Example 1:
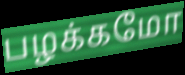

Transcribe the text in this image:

பழக்கமோ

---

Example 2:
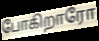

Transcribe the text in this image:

போகிறாரோ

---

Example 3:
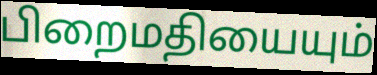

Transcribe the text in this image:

பிறைமதியையும்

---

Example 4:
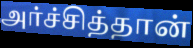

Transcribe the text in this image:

அர்ச்சித்தான்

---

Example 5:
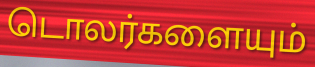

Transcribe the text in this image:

டொலர்களையும்